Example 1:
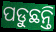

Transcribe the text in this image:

ପଡୁଛନ୍ତି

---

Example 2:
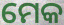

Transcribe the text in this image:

ମେକ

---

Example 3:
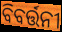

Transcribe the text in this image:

ବିବର୍ତ୍ତନୀ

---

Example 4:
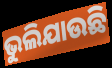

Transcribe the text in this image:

ଭୁଲିଯାଉଛି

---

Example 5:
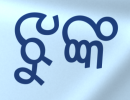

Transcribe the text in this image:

ଝୁଙ୍କ